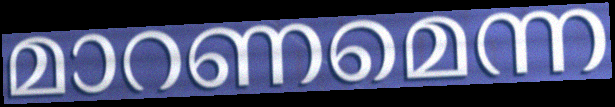
മാറണമെന്ന